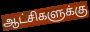
ஆட்சிகளுக்கு